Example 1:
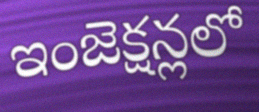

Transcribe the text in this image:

ఇంజెక్షన్లలో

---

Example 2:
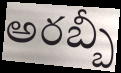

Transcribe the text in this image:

అరబ్బీ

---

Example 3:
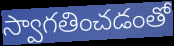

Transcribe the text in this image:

స్వాగతించడంతో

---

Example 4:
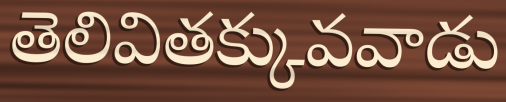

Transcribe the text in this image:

తెలివితక్కువవాడు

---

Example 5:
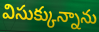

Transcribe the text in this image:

విసుక్కున్నాను